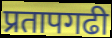
प्रतापगढी